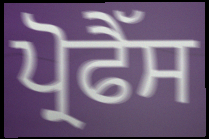
ਪ੍ਰੋਫੈੱਸ